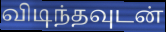
விடிந்தவுடன்